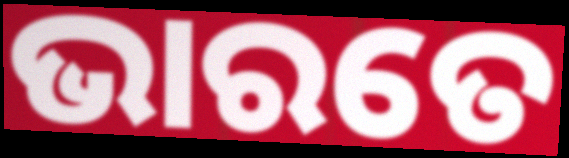
ଭାରତେ